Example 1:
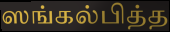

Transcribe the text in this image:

ஸங்கல்பித்த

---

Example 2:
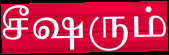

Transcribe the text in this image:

சீஷரும்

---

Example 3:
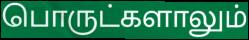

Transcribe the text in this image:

பொருட்களாலும்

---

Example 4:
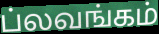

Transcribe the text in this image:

ப்லவங்கம்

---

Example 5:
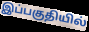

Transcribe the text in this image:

இப்பகுதியில்